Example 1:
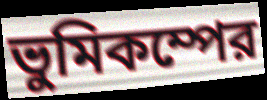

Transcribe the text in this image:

ভুমিকম্পের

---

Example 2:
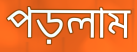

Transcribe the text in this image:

পড়লাম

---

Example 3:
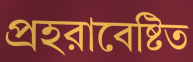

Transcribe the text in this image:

প্রহরাবেষ্টিত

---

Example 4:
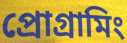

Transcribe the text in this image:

প্রোগ্রামিং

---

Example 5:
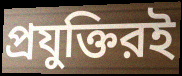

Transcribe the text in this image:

প্রযুক্তিরই